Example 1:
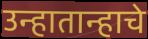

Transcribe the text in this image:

उन्हातान्हाचे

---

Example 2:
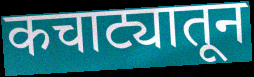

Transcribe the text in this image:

कचाट्यातून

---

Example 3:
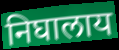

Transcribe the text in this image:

निघालाय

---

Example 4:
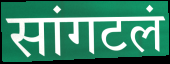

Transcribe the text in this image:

सांगटलं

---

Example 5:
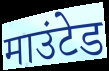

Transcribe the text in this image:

माउंटेड